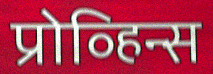
प्रोव्हिन्स